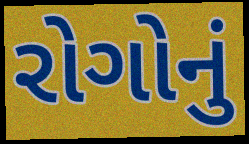
રોગોનું